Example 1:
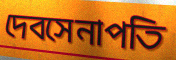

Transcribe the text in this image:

দেবসেনাপতি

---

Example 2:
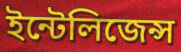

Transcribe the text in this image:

ইন্টেলিজেন্স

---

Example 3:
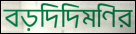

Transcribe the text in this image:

বড়দিদিমণির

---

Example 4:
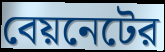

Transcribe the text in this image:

বেয়নেটের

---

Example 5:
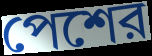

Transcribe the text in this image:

পেশের